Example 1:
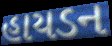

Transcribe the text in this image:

હાયડન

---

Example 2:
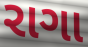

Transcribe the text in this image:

રાગા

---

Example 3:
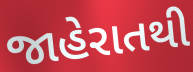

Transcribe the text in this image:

જાહેરાતથી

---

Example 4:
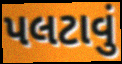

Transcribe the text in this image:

પલટાવું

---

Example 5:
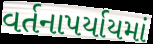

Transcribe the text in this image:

વર્તનાપર્યાયમાં